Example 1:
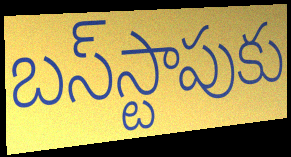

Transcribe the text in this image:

బస్‌స్టాపుకు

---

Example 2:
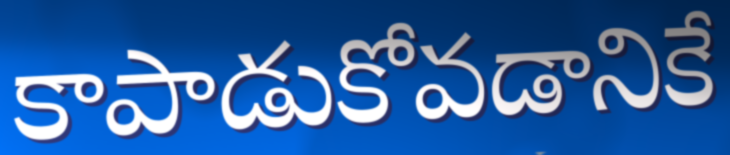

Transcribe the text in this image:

కాపాడుకోవడానికే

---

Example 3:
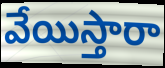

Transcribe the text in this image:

వేయిస్తారా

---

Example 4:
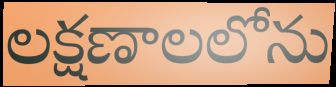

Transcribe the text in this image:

లక్షణాలలోను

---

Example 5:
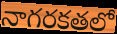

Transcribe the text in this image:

నాగరకతలో